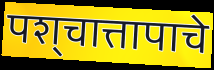
पश्चात्तापाचे